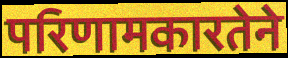
परिणामकारतेने